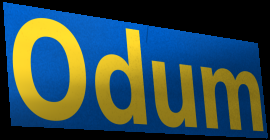
Odum